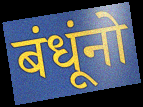
बंधूंनो